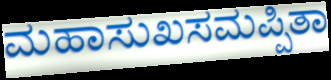
ಮಹಾಸುಖಸಮಪ್ಪಿತಾ